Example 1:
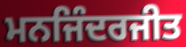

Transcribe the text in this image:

ਮਨਜਿੰਦਰਜੀਤ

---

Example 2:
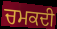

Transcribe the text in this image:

ਚਮਕਦੀ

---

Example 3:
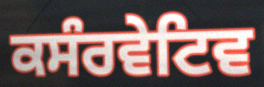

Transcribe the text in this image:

ਕਸੰਰਵੇਟਿਵ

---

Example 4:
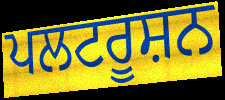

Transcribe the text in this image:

ਪਲਟਰੂਸ਼ਨ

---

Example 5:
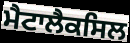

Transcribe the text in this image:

ਮੈਟਾਲੈਕਸਿਲ